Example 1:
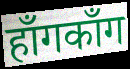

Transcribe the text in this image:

हाँगकाँग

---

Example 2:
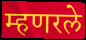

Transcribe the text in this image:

म्हणरले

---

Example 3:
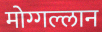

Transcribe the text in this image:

मोग्गल्लान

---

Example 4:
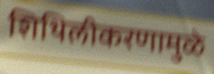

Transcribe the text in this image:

शिथिलीकरणामुळे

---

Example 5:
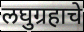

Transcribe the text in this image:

लघुग्रहाचे